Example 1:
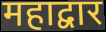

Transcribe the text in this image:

महाद्वार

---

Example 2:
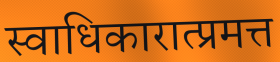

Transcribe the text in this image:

स्वाधिकारात्प्रमत्त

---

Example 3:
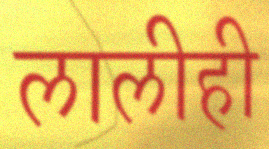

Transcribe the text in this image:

लालीही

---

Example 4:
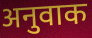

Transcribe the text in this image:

अनुवाक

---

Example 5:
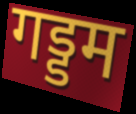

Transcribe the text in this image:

गड्डम